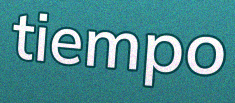
tiempo